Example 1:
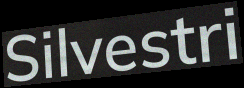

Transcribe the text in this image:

Silvestri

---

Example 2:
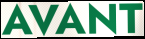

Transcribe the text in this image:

AVANT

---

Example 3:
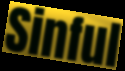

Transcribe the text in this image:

Sinful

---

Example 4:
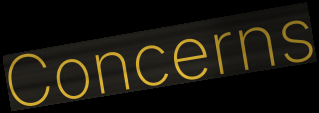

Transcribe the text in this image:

Concerns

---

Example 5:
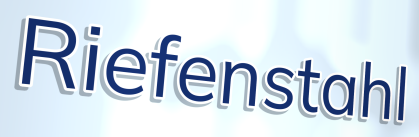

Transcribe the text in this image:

Riefenstahl